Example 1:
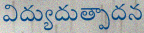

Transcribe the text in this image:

విద్యుదుత్పాదన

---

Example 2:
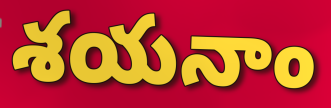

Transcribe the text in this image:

శయనాం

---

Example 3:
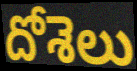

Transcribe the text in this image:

దోశెలు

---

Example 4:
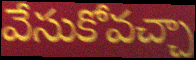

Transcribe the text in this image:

వేసుకోవచ్చా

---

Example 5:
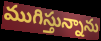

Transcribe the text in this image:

ముగిస్తున్నాను